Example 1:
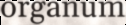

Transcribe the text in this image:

organum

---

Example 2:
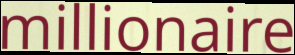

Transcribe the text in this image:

millionaire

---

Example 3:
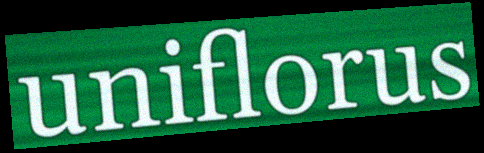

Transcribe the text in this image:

uniflorus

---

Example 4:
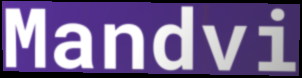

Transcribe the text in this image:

Mandvi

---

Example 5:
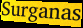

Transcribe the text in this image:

Surganas